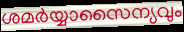
ശമർയ്യാസൈന്യവും